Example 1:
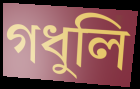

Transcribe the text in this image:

গধুলি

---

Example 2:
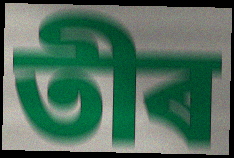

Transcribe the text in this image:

তীৰ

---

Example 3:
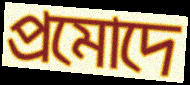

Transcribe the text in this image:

প্ৰমোদে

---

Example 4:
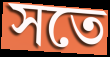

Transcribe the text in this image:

সতে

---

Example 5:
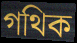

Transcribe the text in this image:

গথিক